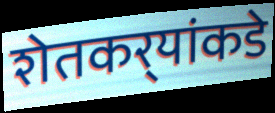
शेतकर्‍यांकडे